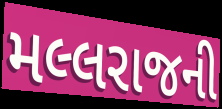
મલ્લરાજની